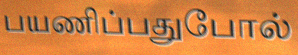
பயணிப்பதுபோல்